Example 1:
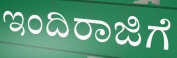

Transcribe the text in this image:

ಇಂದಿರಾಜಿಗೆ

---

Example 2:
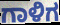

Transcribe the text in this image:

ಗಾಳಿಗ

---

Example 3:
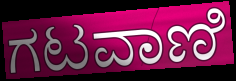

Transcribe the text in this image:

ಗಟವಾಣಿ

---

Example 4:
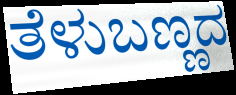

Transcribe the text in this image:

ತೆಳುಬಣ್ಣದ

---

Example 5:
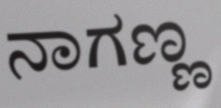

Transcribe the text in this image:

ನಾಗಣ್ಣ